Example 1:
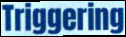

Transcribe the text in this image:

Triggering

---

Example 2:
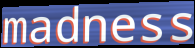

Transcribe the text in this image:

madness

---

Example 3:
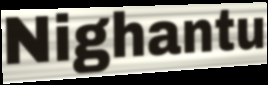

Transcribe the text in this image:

Nighantu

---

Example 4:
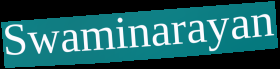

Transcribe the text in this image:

Swaminarayan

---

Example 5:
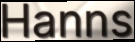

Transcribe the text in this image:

Hanns